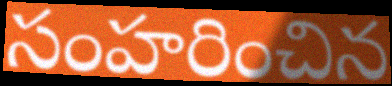
సంహరించిన